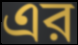
এর